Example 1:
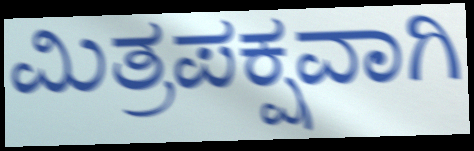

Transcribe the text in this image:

ಮಿತ್ರಪಕ್ಷವಾಗಿ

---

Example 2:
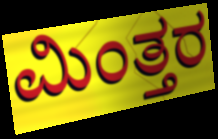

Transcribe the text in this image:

ಮಿಂತ್ತರ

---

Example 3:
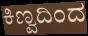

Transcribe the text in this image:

ಕಿಣ್ವದಿಂದ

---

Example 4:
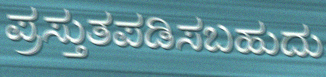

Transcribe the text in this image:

ಪ್ರಸ್ತುತಪಡಿಸಬಹುದು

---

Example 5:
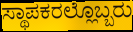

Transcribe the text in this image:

ಸ್ಥಾಪಕರಲ್ಲೊಬ್ಬರು